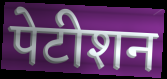
पेटीशन